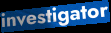
investigator